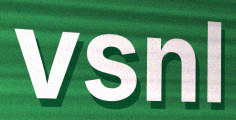
vsnl